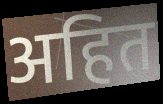
अहित